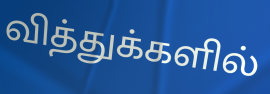
வித்துக்களில்